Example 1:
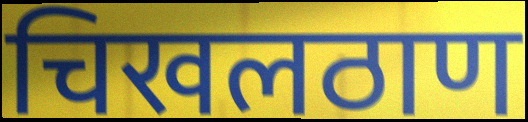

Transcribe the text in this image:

चिखलठाण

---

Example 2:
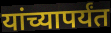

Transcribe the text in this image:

यांच्यापर्यंत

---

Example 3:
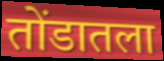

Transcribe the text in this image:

तोंडातला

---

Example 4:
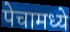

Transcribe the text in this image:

पेचामध्ये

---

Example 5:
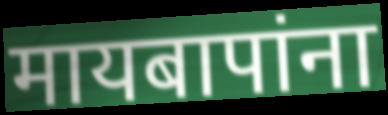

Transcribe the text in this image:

मायबापांना